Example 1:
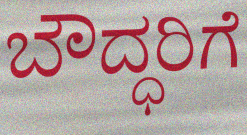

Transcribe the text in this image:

ಬೌದ್ಧರಿಗೆ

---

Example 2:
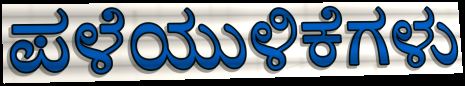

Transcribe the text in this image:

ಪಳೆಯುಳಿಕೆಗಳು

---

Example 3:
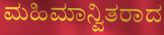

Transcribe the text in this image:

ಮಹಿಮಾನ್ವಿತರಾದ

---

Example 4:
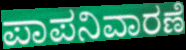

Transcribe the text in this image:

ಪಾಪನಿವಾರಣೆ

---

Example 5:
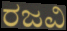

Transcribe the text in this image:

ರಜವಿ